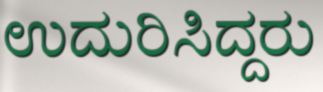
ಉದುರಿಸಿದ್ದರು